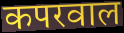
कपरवाल